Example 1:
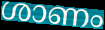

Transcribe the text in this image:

ശാണം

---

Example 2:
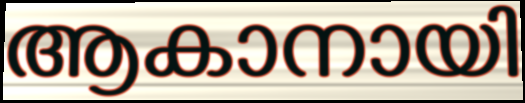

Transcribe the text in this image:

ആകാനായി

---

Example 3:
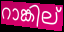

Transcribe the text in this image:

റാങ്കില്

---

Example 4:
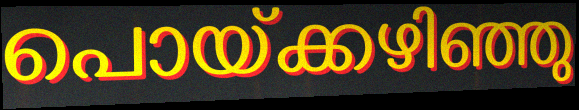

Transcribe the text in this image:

പൊയ്‌ക്കഴിഞ്ഞു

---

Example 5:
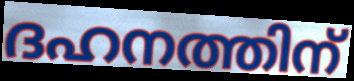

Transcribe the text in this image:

ദഹനത്തിന്